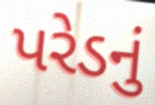
પરેડનું